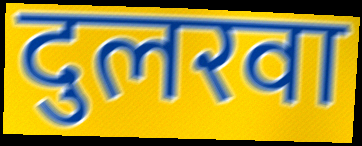
दुलरवा